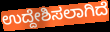
ಉದ್ದೇಶಿಸಲಾಗಿದೆ